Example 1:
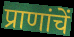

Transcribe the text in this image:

प्राणांचें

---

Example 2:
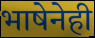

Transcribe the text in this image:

भाषेनेही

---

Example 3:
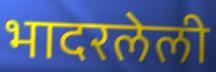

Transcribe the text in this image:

भादरलेली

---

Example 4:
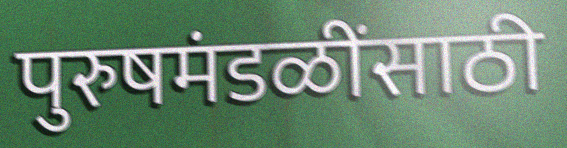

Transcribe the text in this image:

पुरुषमंडळींसाठी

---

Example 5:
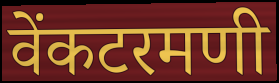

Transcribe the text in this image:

वेंकटरमणी